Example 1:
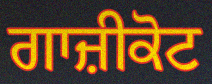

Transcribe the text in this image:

ਗਾਜ਼ੀਕੋਟ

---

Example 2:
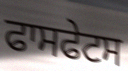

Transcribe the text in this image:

ਫਾਸਫੇਟਸ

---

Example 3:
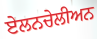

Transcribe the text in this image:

ਏਲਨਚੇਲੀਅਨ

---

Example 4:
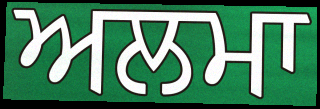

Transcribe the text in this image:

ਅਲਮਾ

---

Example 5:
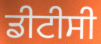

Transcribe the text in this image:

ਡੀਟੀਸੀ